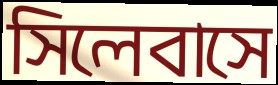
সিলেবাসে